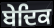
ਬੇਦਿਕ